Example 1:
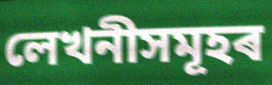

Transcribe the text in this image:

লেখনীসমূহৰ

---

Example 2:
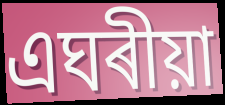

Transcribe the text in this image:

এঘৰীয়া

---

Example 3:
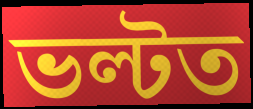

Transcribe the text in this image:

ভল্টত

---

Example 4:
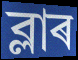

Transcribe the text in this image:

ব্লাৰ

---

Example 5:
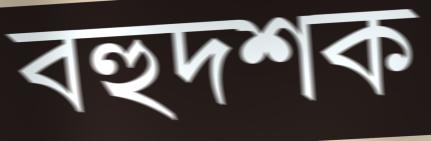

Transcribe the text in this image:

বহুদশক